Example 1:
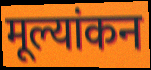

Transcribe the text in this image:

मूल्‍यांकन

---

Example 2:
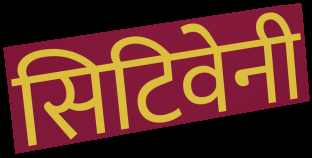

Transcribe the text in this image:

सिटिवेनी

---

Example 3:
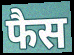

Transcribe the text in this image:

फैस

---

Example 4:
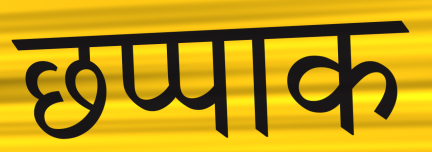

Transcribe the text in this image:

छप्पाक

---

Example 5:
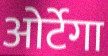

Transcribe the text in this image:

ओर्टेगा